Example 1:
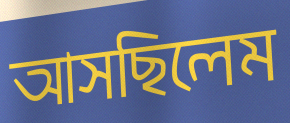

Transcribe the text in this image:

আসছিলেম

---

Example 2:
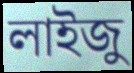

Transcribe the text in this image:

লাইজু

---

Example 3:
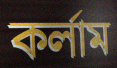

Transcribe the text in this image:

কর্লাম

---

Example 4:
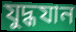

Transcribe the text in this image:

যুদ্ধযান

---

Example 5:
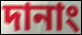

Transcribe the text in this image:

দানাং